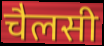
चैलसी